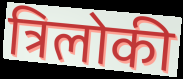
त्रिलोकी